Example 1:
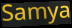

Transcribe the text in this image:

Samya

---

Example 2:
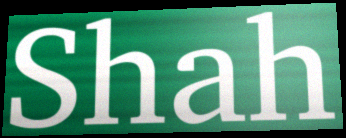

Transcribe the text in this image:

Shah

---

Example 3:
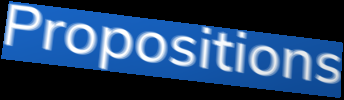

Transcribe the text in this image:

Propositions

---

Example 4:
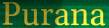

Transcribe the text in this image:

Purana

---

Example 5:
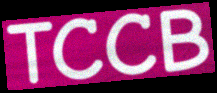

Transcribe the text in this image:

TCCB